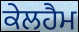
ਕੇਲਹੈਮ